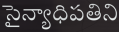
సైన్యాధిపతిని